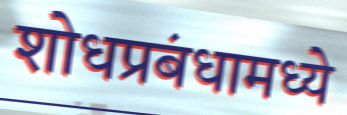
शोधप्रबंधामध्ये